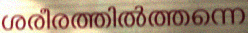
ശരീരത്തിൽത്തന്നെ